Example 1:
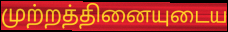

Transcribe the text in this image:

முற்றத்தினையுடைய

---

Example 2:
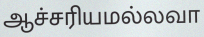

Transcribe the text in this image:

ஆச்சரியமல்லவா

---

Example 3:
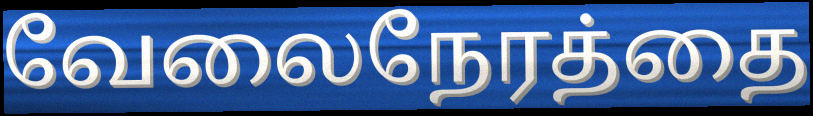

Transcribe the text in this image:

வேலைநேரத்தை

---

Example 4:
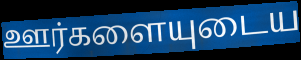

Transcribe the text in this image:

ஊர்களையுடைய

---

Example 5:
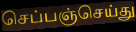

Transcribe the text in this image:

செப்பஞ்செய்து